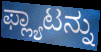
ಫ್ಲ್ಯಾಟನ್ನು